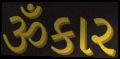
ૐકાર